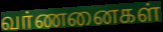
வர்ணனைகள்